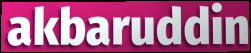
akbaruddin